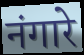
नंगारे